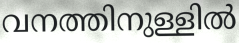
വനത്തിനുള്ളിൽ